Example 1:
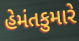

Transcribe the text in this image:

હેમંતકુમારે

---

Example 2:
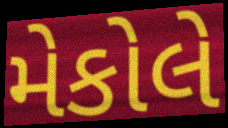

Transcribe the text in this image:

મેકોલે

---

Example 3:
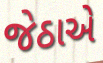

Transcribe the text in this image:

જેઠાએ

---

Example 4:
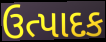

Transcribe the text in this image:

ઉત્પાદક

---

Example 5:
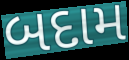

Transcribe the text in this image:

બદામ